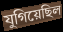
যুগিয়েছিল